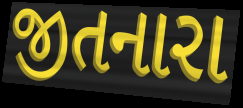
જીતનારા